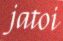
jatoi